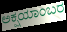
ಅಕ್ಷಯಾಂಬರ